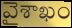
వైశాఖం